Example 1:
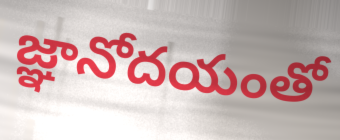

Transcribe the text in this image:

జ్ఞానోదయంతో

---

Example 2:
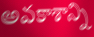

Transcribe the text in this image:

అవకాశాన్ని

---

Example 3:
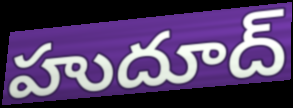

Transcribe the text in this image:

హుదూద్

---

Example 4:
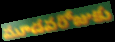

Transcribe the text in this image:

మూడవరోజుకు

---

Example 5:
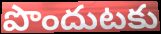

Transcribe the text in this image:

పొందుటకు